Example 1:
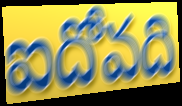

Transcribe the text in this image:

ఐదోవది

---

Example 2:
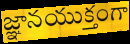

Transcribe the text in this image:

జ్ఞానయుక్తంగా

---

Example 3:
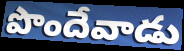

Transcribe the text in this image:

పొందేవాడు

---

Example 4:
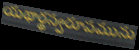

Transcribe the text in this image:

యథార్థస్వరూపమును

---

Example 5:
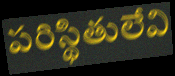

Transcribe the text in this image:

పరిస్థితులేవి